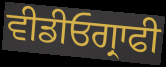
ਵੀਡੀਓਗ੍ਰਾਫੀ